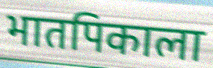
भातपिकाला